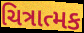
ચિત્રાત્મક